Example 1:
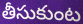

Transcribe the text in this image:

తీసుకుంట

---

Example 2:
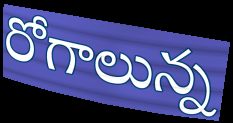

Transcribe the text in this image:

రోగాలున్న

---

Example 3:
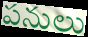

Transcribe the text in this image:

పనులు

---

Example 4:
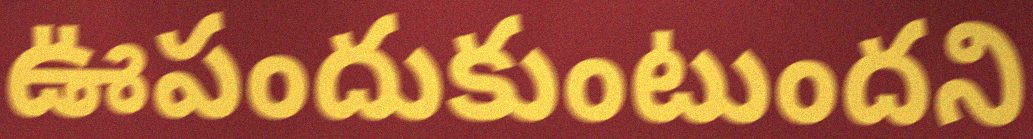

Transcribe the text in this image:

ఊపందుకుంటుందని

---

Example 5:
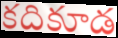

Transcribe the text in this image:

కదికూడ